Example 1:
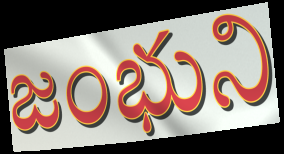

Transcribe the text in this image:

జంభుని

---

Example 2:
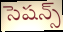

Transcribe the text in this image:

సెషన్స్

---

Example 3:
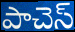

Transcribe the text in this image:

పాచెస్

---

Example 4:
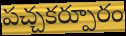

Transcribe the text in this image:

పచ్చకర్పూరం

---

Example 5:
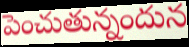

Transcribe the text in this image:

పెంచుతున్నందున